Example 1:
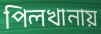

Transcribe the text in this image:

পিলখানায়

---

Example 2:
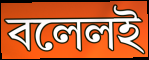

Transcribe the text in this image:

বলেলই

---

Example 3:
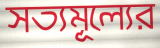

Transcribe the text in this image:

সত্যমূল্যের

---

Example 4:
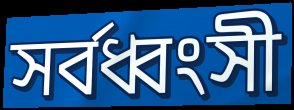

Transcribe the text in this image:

সর্বধ্বংসী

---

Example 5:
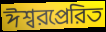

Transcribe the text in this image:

ঈশ্বরপ্রেরিত